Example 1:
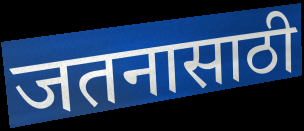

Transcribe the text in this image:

जतनासाठी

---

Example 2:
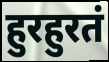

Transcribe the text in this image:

हुरहुरतं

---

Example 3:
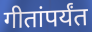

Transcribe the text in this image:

गीतांपर्यंत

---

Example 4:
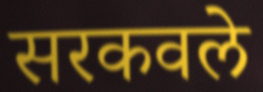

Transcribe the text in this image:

सरकवले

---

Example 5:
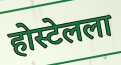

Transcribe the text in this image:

होस्टेलला